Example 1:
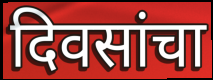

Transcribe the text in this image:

दिवसांचा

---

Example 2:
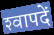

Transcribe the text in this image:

श्वापदें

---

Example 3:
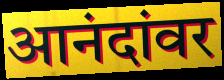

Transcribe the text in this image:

आनंदांवर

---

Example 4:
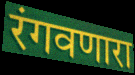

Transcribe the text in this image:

रंगवणारा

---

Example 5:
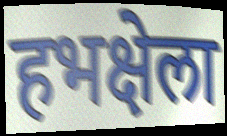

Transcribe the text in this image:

हभक्षेला